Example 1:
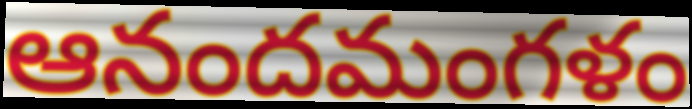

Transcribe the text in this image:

ఆనందమంగళం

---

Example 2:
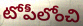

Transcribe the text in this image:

టోపీలోంచి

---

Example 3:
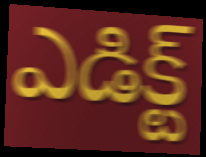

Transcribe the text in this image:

ఎడిక్ట్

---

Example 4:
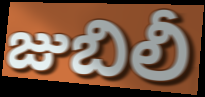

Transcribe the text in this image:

జుబిలీ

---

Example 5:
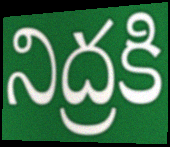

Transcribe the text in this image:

నిద్రకి